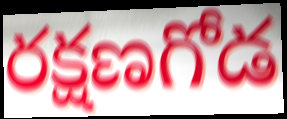
రక్షణగోడ